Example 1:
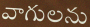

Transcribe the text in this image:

వాగులను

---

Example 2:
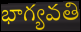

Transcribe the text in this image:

భాగ్యవతి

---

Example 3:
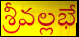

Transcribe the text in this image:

శ్రీవల్లభే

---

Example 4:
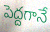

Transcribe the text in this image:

పెద్దగానే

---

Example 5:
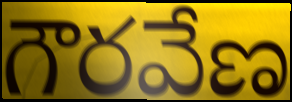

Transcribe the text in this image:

గౌరవేణ